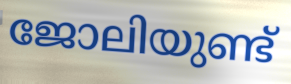
ജോലിയുണ്ട്